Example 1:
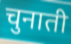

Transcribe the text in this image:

चुनाती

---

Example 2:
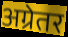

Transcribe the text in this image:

अग्रेतर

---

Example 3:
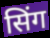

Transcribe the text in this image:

सिंग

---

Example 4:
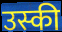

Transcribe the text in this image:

उस्‍की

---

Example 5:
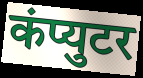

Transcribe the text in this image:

कंप्युटर